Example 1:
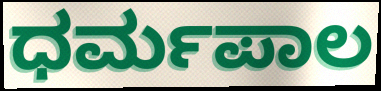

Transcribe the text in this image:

ಧರ್ಮಪಾಲ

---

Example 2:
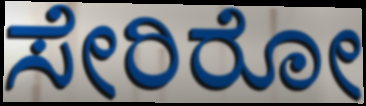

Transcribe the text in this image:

ಸೇರಿರೋ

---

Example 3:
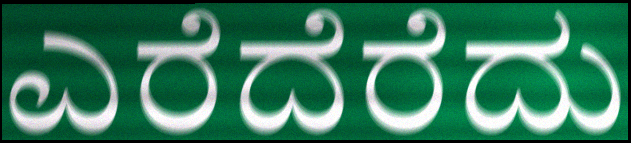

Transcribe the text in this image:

ಎರೆದೆರೆದು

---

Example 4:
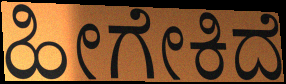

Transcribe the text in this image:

ಹೀಗೇಕಿದೆ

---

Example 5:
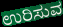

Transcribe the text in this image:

ಉರಿಸುವ